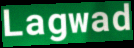
Lagwad